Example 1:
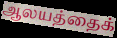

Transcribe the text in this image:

ஆலயத்தைக்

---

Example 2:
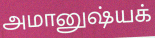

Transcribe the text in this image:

அமானுஷ்யக்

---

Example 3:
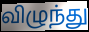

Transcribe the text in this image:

விழுந்து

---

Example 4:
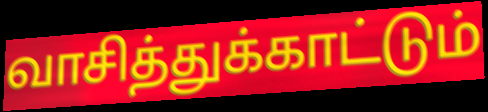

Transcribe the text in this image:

வாசித்துக்காட்டும்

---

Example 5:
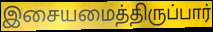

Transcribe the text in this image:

இசையமைத்திருப்பார்